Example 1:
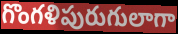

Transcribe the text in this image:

గొంగళిపురుగులాగా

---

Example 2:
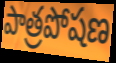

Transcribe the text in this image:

పాత్రపోషణ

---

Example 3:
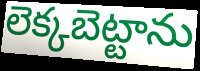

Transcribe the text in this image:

లెక్కబెట్టాను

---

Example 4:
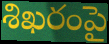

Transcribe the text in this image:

శిఖరంపై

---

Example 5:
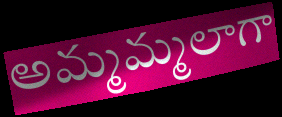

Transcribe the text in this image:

అమ్మమ్మలాగా